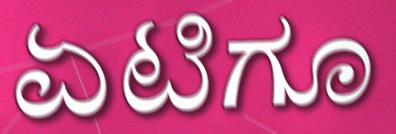
ಏಟಿಗೂ